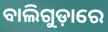
ବାଲିଗୁଡ଼ାରେ